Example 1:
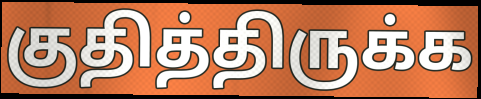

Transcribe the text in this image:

குதித்திருக்க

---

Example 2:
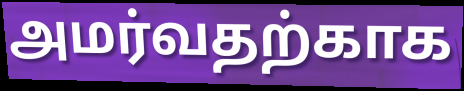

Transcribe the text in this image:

அமர்வதற்காக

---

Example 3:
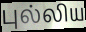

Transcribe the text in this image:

புல்லிய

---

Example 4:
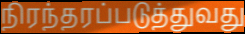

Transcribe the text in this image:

நிரந்தரப்படுத்துவது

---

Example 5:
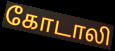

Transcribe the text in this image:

கோடாலி